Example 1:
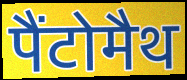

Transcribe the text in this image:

पैंटोमैथ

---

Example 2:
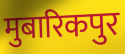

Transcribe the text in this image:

मुबारिकपुर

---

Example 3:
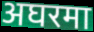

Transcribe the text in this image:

अघरमा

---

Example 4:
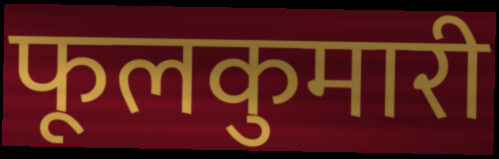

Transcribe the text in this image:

फूलकुमारी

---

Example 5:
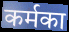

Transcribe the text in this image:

कर्मका